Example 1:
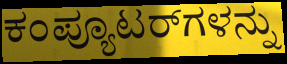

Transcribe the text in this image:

ಕಂಪ್ಯೂಟರ್‌ಗಳನ್ನು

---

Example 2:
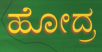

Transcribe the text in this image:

ಹೋದ್ರ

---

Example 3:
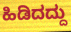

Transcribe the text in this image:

ಹಿಡಿದದ್ದು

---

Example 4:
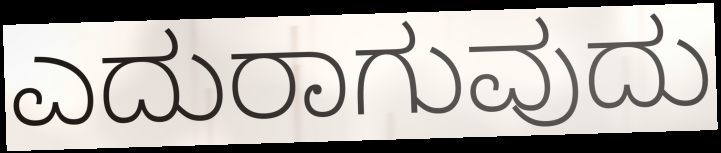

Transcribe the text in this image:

ಎದುರಾಗುವುದು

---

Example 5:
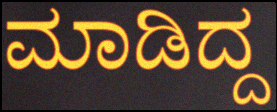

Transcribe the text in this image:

ಮಾಡಿದ್ದ